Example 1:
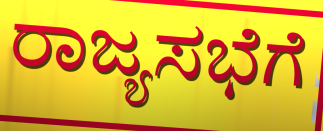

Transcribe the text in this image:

ರಾಜ್ಯಸಭೆಗೆ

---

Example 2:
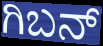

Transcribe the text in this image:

ಗಿಬನ್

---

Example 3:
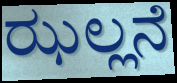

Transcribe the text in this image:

ಝಲ್ಲನೆ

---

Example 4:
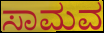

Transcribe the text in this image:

ಸಾಮವ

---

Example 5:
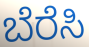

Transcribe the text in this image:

ಬೆರೆಸಿ